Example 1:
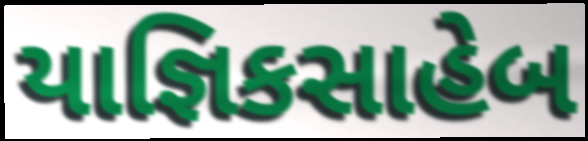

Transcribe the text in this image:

યાજ્ઞિકસાહેબ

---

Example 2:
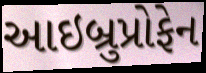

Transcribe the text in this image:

આઇબ્રુપ્રોફેન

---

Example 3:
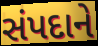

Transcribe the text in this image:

સંપદાને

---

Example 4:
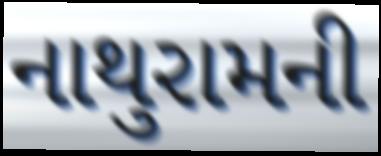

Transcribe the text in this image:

નાથુરામની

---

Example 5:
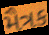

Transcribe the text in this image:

મૈત્રક